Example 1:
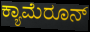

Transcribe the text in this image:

ಕ್ಯಾಮೆರೂನ್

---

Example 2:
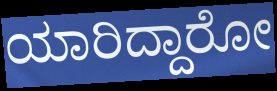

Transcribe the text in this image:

ಯಾರಿದ್ದಾರೋ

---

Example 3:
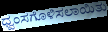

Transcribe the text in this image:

ಧ್ವಂಸಗೊಳಿಸಲಾಯಿತು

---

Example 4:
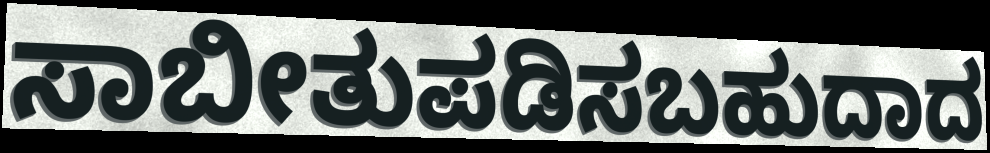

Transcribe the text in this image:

ಸಾಬೀತುಪಡಿಸಬಹುದಾದ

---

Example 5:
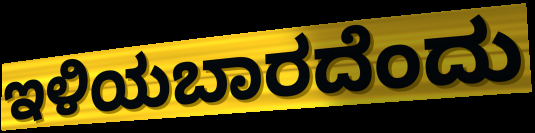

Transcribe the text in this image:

ಇಳಿಯಬಾರದೆಂದು